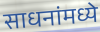
साधनांमध्ये